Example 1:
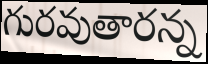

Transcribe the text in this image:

గురవుతారన్న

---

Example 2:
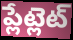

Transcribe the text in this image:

ప్లేట్లెట్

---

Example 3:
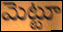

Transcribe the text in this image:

మెట్టూ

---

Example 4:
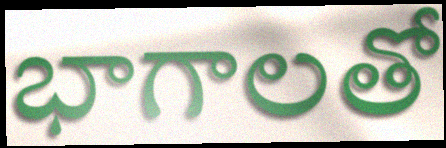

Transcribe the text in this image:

భాగాలతో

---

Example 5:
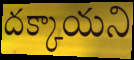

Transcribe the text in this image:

దక్కాయని